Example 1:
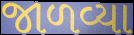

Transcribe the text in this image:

જાળવ્યા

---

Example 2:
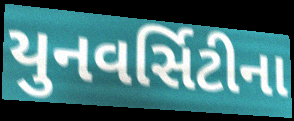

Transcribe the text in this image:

યુનવર્સિટીના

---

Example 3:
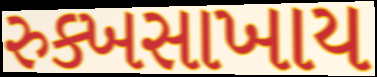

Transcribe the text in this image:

રુક્ખસાખાય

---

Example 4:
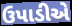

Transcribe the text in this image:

ઉપાડીએ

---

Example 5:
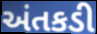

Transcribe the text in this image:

અંતકડી